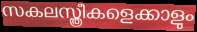
സകലസ്ത്രീകളെക്കാളും